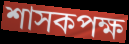
শাসকপক্ষ